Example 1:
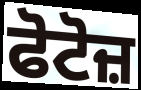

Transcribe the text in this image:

ਫੋਟੋਜ਼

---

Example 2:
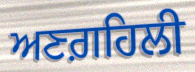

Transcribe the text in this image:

ਅਣਗ਼ਹਿਲੀ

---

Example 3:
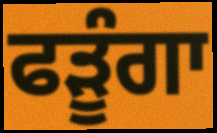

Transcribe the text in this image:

ਫੜੂੰਗਾ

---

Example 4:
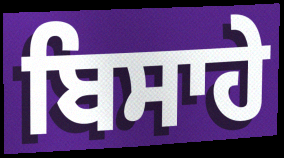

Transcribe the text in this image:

ਬਿਸਾਹੇ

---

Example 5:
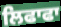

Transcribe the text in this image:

ਲਿਫਾਫਾ